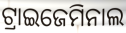
ଟ୍ରାଇଜେମିନାଲ